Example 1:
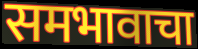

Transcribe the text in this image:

समभावाचा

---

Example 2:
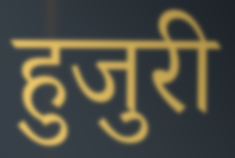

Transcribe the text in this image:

हुजुरी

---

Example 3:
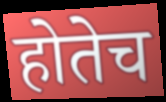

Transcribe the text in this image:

होतेच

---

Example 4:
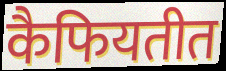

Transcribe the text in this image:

कैफियतीत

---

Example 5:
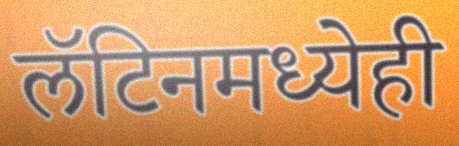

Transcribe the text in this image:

लॅटिनमध्येही